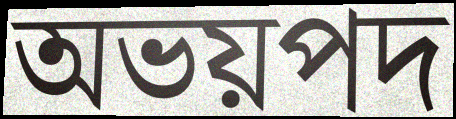
অভয়পদ